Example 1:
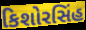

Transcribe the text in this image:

કિશોરસિંહ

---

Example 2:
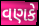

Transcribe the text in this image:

વણકે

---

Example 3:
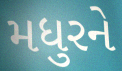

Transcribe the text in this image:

મધુરને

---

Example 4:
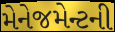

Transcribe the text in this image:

મેનેજમેન્ટની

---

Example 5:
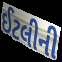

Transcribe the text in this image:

ઈટલીની